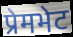
प्रेमभेट